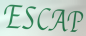
ESCAP